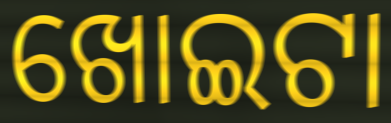
ଖୋଇଟା